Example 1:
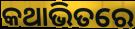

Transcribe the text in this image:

କଥାଭିତରେ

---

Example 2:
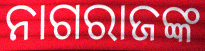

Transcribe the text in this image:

ନାଗରାଜଙ୍କ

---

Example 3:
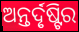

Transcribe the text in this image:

ଅନ୍ତର୍ଦୃଷ୍ଟିର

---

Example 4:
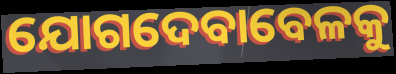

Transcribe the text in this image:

ଯୋଗଦେବାବେଳକୁ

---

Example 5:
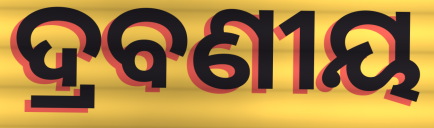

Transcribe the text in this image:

ଦ୍ରବଣୀୟ